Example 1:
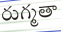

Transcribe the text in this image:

రుగ్మతా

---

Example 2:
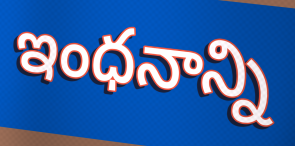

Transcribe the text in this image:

ఇంధనాన్ని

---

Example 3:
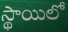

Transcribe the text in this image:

స్థాయిలో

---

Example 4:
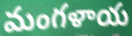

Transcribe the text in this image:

మంగళాయ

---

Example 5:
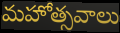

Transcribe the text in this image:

మహోత్సవాలు